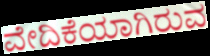
ವೇದಿಕೆಯಾಗಿರುವ